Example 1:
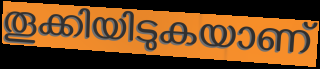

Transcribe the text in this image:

തൂക്കിയിടുകയാണ്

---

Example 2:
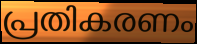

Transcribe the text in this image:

പ്രതികരണം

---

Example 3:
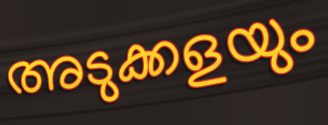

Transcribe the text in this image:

അടുക്കളയും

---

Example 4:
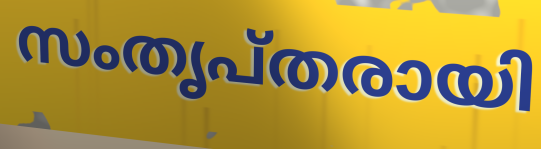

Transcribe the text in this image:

സംതൃപ്തരായി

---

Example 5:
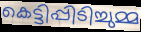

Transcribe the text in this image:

കെട്ടിപ്പിടിച്ചുമ്മ